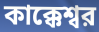
কাক্কেশ্বর